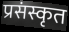
प्रसंस्कृत